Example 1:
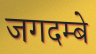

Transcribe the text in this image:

जगदम्बे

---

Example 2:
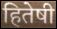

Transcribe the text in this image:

हितेषी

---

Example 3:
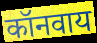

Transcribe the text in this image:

कॉनवाय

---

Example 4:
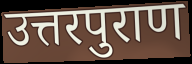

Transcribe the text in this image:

उत्तरपुराण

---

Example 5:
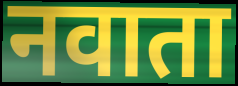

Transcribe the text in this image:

नवाता